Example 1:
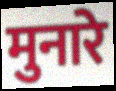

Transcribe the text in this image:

मुनारे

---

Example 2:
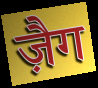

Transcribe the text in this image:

ज़ैग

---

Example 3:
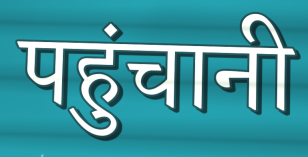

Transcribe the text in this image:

पहुंचानी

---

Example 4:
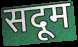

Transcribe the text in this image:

सदूम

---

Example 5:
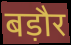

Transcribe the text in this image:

बड़ौर